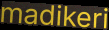
madikeri